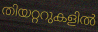
തിയറ്ററുകളിൽ